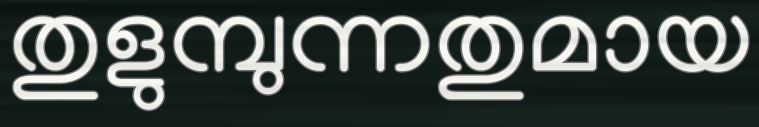
തുളുമ്പുന്നതുമായ